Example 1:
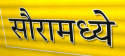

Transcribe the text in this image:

सौरामध्ये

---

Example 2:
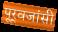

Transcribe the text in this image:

पूर्वजांसी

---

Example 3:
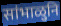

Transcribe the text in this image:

सांभाळुनि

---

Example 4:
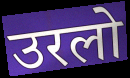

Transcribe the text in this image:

उरलो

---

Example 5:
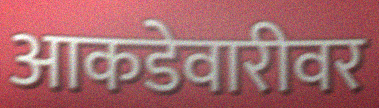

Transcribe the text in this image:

आकडेवारीवर